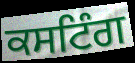
ਕਸਟਿੰਗ